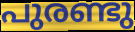
പുരണ്ടു